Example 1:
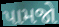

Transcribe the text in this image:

પામજો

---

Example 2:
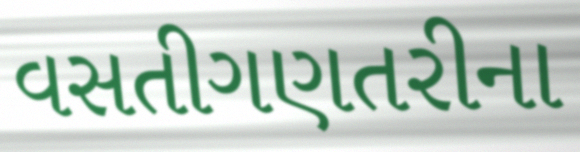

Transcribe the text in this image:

વસતીગણતરીના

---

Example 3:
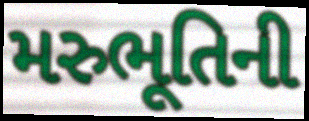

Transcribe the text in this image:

મરુભૂતિની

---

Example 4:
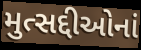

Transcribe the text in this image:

મુત્સદ્દીઓનાં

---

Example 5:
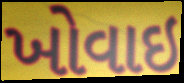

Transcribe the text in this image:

ખોવાઇ